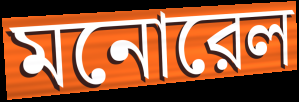
মনোরেল